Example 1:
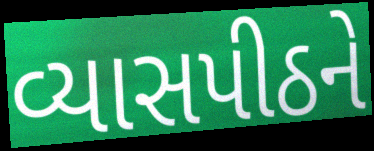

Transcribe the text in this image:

વ્યાસપીઠને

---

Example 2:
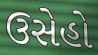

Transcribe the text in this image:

ઉસેહો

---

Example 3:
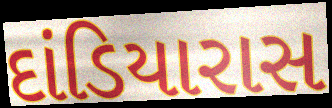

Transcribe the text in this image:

દાંડિયારાસ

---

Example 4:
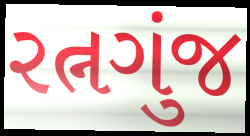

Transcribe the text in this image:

રત્નગુંજ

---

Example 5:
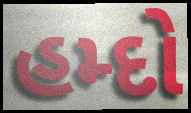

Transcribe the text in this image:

હમ્દો